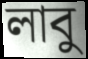
লাবু